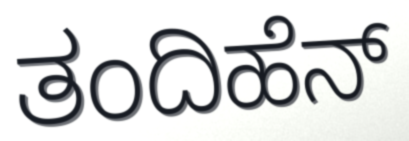
ತಂದಿಹೆನ್